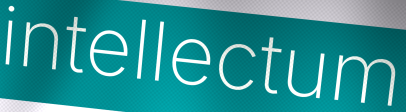
intellectum